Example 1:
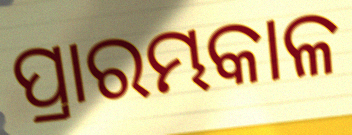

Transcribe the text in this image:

ପ୍ରାରମ୍ଭକାଳ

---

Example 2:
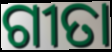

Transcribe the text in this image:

ଗୀତା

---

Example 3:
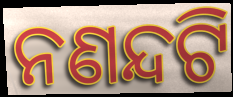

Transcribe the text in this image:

ନଣନ୍ଦଟି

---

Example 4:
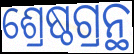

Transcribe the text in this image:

ଶ୍ରେଷ୍ଠଗ୍ରନ୍ଥ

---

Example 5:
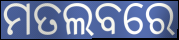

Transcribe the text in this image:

ମତଲବରେ